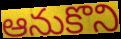
ఆనుకొని